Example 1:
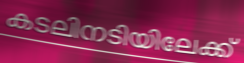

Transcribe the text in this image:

കടലിനടിയിലേക്ക്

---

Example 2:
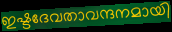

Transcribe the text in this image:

ഇഷ്ടദേവതാവന്ദനമായി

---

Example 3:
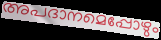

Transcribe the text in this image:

അപദാനമെപ്പോഴും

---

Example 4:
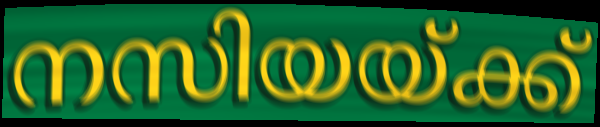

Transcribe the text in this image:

നസിയയ്ക്ക്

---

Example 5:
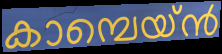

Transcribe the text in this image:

കാമ്പെയ്ൻ